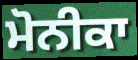
ਮੋਨੀਕਾ